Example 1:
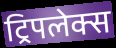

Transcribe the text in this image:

ट्रिपलेक्स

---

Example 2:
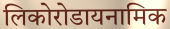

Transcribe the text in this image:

लिकोरोडायनामिक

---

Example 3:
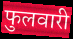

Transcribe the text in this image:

फुलवारी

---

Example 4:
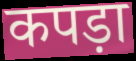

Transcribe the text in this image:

कपड़ा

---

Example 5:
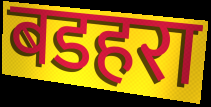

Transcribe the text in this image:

बडहरा